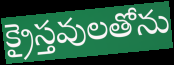
క్రైస్తవులతోను